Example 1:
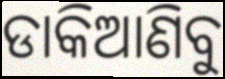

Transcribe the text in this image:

ଡାକିଆଣିବୁ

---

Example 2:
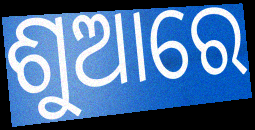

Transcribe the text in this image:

ଶୁଆରେ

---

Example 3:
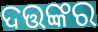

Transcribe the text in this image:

ଦତ୍ତଙ୍କର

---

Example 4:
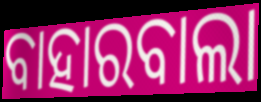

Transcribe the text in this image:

ବାହାରବାଲା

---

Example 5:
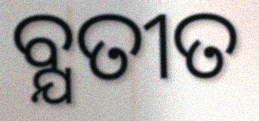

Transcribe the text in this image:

ବ୍ଯତୀତ